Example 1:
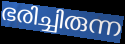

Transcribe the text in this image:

ഭരിച്ചിരുന്ന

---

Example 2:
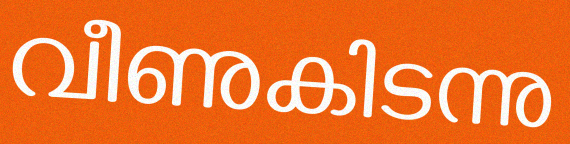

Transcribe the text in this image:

വീണുകിടന്നു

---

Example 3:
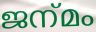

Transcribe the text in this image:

ജന്‌മം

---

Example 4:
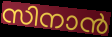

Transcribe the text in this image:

സിനാൻ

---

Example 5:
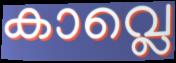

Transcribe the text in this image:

കാവ്ലെ